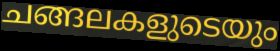
ചങ്ങലകളുടെയും